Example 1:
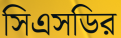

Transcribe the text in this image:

সিএসডির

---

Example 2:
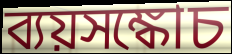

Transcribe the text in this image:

ব্যয়সঙ্কোচ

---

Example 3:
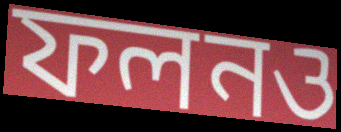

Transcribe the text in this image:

ফলনও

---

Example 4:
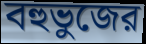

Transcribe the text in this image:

বহুভুজের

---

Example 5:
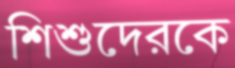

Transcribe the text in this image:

শিশুদেরকে